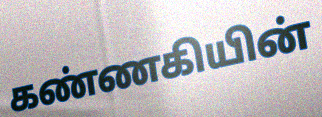
கண்ணகியின்